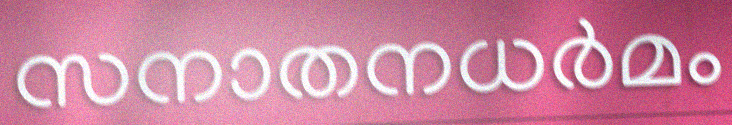
സനാതനധർമം